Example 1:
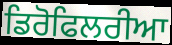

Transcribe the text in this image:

ਡਿਰੋਫਿਲਰੀਆ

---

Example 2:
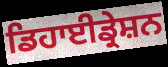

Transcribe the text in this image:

ਡਿਹਾਈਡ੍ਰੇਸ਼ਨ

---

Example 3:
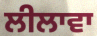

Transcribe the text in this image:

ਲੀਲਾਵਾ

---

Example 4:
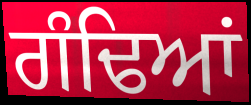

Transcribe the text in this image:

ਗੰਢਿਆਂ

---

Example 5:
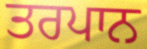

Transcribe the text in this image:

ਤਰਪਾਨ